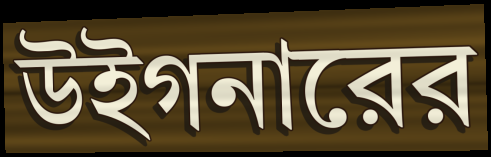
উইগনারের